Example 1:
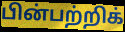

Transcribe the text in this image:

பின்பற்றிக்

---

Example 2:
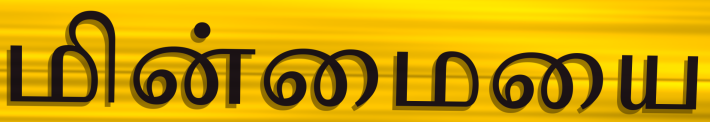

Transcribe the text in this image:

மின்மையை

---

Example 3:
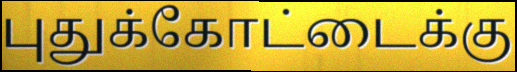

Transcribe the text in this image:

புதுக்கோட்டைக்கு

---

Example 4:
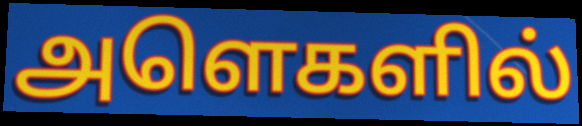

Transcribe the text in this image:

அளெகளில்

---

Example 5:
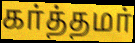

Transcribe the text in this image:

கர்த்தமர்